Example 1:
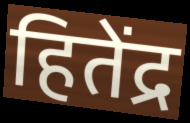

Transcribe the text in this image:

हितेंद्र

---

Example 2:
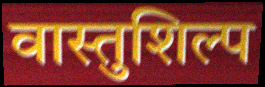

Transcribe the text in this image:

वास्तुशिल्प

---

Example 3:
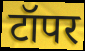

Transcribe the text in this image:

टॉपर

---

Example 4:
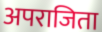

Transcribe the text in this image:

अपराजिता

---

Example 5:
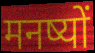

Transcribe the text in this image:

मनष्यों